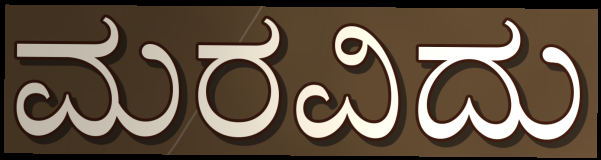
ಮರವಿದು